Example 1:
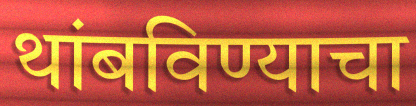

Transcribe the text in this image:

थांबविण्याचा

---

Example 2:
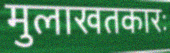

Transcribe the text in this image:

मुलाखतकारः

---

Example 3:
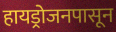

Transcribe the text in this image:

हायड्रोजनपासून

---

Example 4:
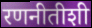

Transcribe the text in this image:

रणनीतीशी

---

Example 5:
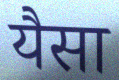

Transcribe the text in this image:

यैसा